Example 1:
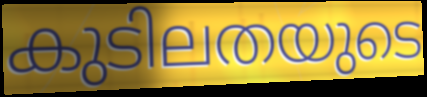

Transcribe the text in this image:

കുടിലതയുടെ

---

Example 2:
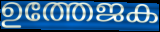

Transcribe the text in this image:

ഉത്തേജക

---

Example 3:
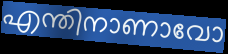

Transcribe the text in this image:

എന്തിനാണാവോ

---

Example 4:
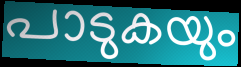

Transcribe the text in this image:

പാടുകയും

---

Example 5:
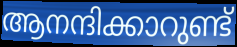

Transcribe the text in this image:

ആനന്ദിക്കാറുണ്ട്